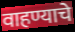
वाहण्याचे